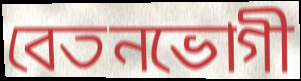
বেতনভোগী